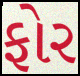
ફોર